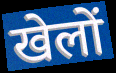
खेलों